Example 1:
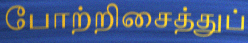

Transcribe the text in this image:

போற்றிசைத்துப்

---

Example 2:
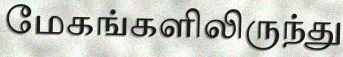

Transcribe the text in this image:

மேகங்களிலிருந்து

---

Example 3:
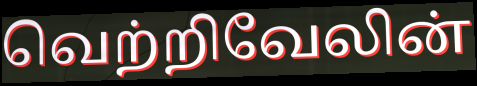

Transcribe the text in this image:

வெற்றிவேலின்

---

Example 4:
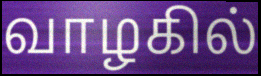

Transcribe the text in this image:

வாழகில்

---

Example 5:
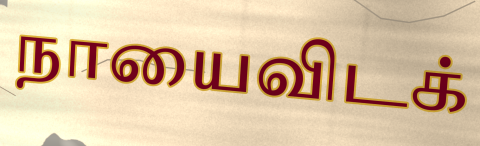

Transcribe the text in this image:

நாயைவிடக்